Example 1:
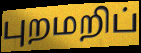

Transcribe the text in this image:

புறமறிப்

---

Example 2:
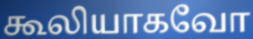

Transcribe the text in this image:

கூலியாகவோ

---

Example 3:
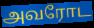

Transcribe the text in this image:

அவரோட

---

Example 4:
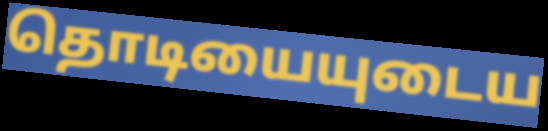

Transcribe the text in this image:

தொடியையுடைய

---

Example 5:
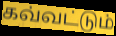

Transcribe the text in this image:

கவ்வட்டும்